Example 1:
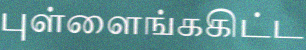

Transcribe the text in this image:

புள்ளைங்ககிட்ட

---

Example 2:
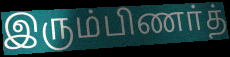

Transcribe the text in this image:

இரும்பிணர்த்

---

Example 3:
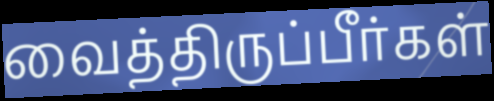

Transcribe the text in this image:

வைத்திருப்பீர்கள்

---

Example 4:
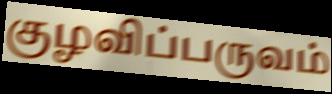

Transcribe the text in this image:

குழவிப்பருவம்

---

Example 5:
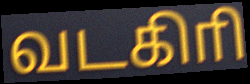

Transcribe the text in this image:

வடகிரி